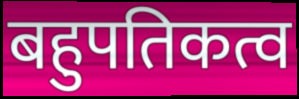
बहुपतिकत्व